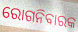
ରୋଗନିବାରକ